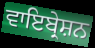
ਵਾਇਬ੍ਰੇਸ਼ਨ